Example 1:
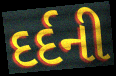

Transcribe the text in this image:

દર્દની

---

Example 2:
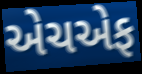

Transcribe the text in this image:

એચએફ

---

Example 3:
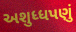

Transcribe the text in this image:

અશુધ્ધપણું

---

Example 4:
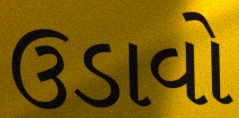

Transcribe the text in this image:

ઉડાવો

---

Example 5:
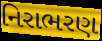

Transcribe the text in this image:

નિરાભરણ